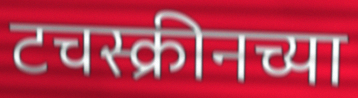
टचस्क्रीनच्या